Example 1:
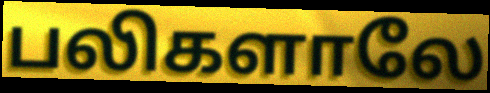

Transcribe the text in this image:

பலிகளாலே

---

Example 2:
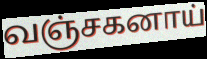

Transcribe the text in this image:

வஞ்சகனாய்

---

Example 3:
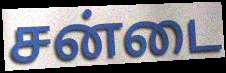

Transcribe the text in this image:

சன்டை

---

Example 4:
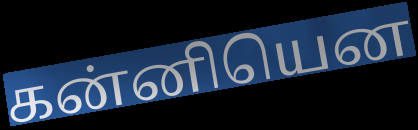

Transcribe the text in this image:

கன்னியென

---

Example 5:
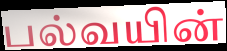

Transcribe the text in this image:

பல்வயின்